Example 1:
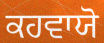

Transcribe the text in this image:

ਕਹਵਾਯੋ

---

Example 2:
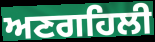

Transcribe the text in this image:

ਅਣਗਹਿਲੀ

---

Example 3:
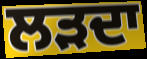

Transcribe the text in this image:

ਲੜਦਾ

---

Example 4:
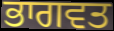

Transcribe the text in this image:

ਭਾਗਵਤ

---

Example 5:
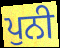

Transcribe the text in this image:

ਪੁਨੀ